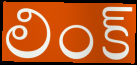
లింక్